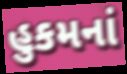
હુકમનાં